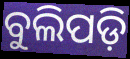
ବୁଲିପଡ଼ି